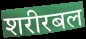
शरीरबल